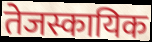
तेजस्कायिक